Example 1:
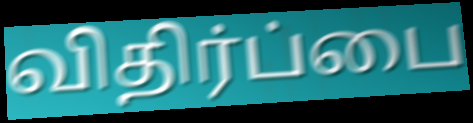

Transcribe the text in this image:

விதிர்ப்பை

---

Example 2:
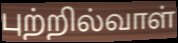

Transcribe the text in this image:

புற்றில்வாள்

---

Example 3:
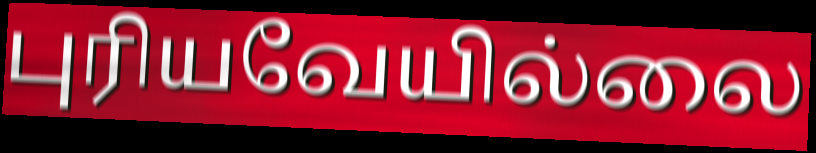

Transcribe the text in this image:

புரியவேயில்லை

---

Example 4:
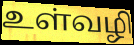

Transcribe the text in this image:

உள்வழி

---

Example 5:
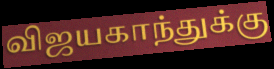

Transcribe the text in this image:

விஜயகாந்துக்கு